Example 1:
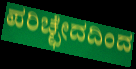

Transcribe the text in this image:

ಪರಿಚ್ಛೇದದಿಂದ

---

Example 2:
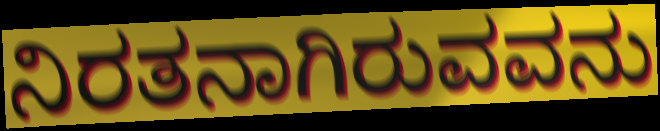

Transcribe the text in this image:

ನಿರತನಾಗಿರುವವನು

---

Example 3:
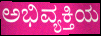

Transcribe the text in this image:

ಅಭಿವ್ಯಕ್ತಿಯ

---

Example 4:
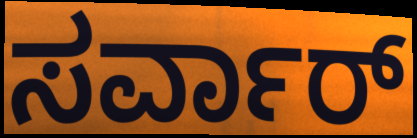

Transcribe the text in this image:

ಸರ್ವಾರ್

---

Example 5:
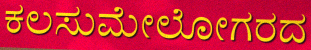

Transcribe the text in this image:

ಕಲಸುಮೇಲೋಗರದ